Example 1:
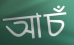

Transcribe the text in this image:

আচঁ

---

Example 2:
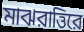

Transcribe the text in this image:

মাঝরাত্তিরে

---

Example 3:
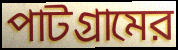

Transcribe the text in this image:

পাটগ্রামের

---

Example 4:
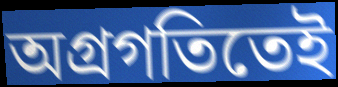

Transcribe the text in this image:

অগ্রগতিতেই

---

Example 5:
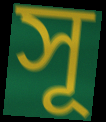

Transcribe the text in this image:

সূ